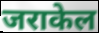
जराकेल